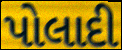
પોલાદી